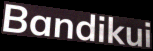
Bandikui